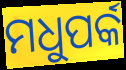
ମଧୁପର୍କ